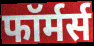
फॉर्मर्स